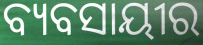
ବ୍ୟବସାୟୀର